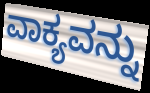
ವಾಕ್ಯವನ್ನು